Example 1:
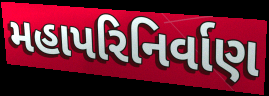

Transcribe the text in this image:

મહાપરિનિર્વાણ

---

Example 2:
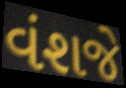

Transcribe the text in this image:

વંશજે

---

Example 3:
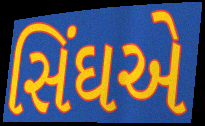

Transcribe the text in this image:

સિંઘએ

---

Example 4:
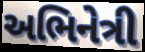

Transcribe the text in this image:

અભિનેત્રી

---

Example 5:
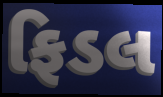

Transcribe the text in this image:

ફિડલ